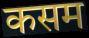
कसम